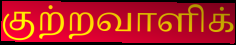
குற்றவாளிக்